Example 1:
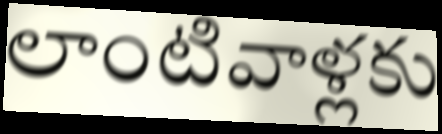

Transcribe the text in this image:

లాంటివాళ్లకు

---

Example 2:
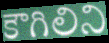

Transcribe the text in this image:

కౌగిలిని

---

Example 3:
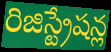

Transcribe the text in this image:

రిజిస్ట్రేషన్ల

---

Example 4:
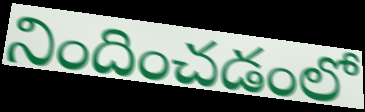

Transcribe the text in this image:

నిందించడంలో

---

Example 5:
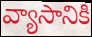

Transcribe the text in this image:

వ్యాసానికి